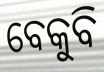
ବେକୁବି